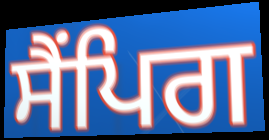
ਸੈਂਪਿਗ